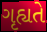
ગૃહ્યતે